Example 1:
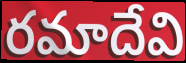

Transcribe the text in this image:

రమాదేవి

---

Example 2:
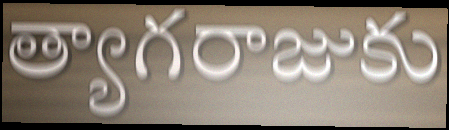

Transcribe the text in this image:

త్యాగరాజుకు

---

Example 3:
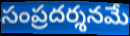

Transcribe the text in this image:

సంప్రదర్శనమే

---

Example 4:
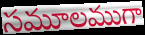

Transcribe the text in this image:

సమూలముగా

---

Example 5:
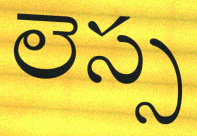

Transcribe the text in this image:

లెస్స